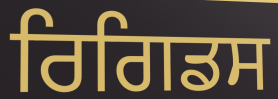
ਰਿਗਿਡਸ